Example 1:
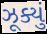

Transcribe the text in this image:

ઝૂક્યું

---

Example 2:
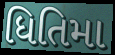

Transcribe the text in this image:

ધિતિમા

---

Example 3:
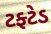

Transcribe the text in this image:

ટફ્ટેડ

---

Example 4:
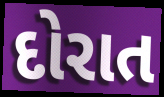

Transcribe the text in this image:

દોરાત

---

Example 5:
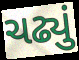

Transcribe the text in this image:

ચઢ્યું